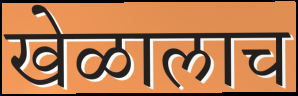
खेळालाच